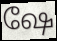
ஷே